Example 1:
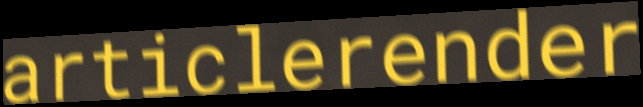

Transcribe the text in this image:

articlerender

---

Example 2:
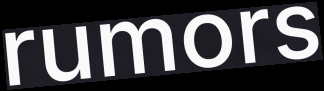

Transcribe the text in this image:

rumors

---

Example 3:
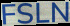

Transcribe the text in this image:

FSLN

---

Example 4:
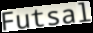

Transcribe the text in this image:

Futsal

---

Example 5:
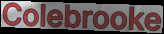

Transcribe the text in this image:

Colebrooke